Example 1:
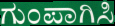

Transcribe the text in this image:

ಗುಂಪಾಗಿಸಿ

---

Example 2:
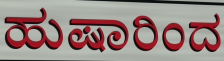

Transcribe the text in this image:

ಹುಷಾರಿಂದ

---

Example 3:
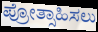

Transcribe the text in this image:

ಪ್ರೋತ್ಸಾಹಿಸಲು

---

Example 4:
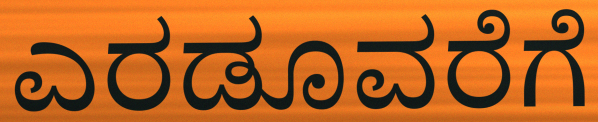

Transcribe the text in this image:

ಎರಡೂವರೆಗೆ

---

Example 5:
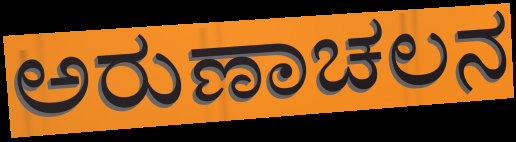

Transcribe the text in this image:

ಅರುಣಾಚಲನ